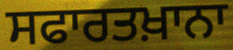
ਸਫਾਰਤਖ਼ਾਨਾ